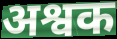
अश्वक